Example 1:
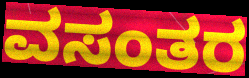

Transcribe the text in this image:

ವಸಂತರ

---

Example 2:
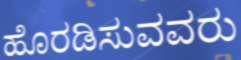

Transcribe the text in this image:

ಹೊರಡಿಸುವವರು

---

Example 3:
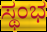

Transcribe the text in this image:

ಸ್ಥಂಭ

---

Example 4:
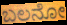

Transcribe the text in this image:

ಬಲನೋ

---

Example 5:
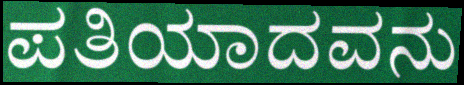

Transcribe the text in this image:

ಪತಿಯಾದವನು